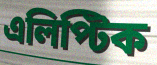
এলিপ্টিক